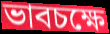
ভাবচক্ষে